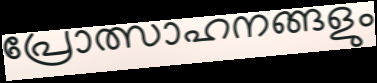
പ്രോത്സാഹനങ്ങളും